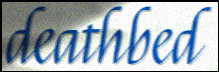
deathbed